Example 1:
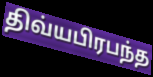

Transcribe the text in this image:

திவ்யபிரபந்த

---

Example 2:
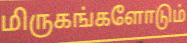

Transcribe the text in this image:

மிருகங்களோடும்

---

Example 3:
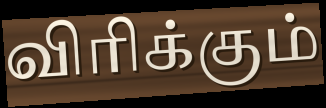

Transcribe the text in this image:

விரிக்கும்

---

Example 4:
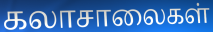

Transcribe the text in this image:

கலாசாலைகள்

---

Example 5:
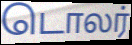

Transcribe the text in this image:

டொலர்